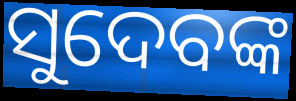
ସୁଦେବଙ୍କ